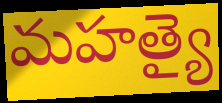
మహత్యై